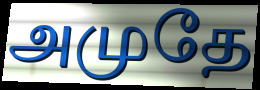
அமுதே